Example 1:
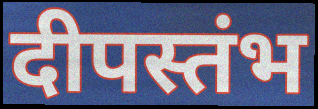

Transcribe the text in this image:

दीपस्तंभ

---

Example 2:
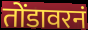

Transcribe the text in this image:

तोंडावरनं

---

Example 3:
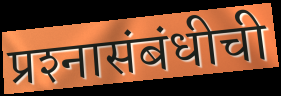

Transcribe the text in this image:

प्रश्नासंबंधीची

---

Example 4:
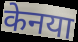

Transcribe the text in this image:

केनया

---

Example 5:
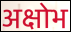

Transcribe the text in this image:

अक्षोभ